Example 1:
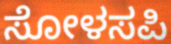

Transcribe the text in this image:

ಸೋಳಸಪಿ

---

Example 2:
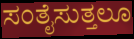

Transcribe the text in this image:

ಸಂತೈಸುತ್ತಲೂ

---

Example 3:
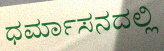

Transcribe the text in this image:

ಧರ್ಮಾಸನದಲ್ಲಿ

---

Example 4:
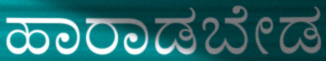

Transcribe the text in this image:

ಹಾರಾಡಬೇಡ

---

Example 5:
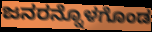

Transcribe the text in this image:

ಜನರನ್ನೊಳಗೊಂಡ